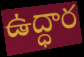
ఉద్ధార